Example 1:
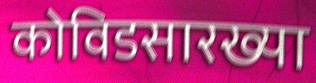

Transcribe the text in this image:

कोविडसारख्या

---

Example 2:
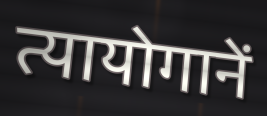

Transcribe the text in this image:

त्यायोगानें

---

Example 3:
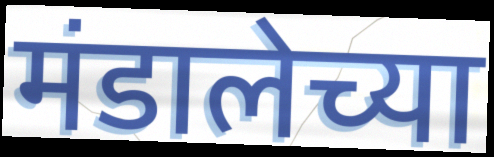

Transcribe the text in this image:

मंडालेच्या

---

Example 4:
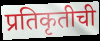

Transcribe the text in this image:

प्रतिकृतीची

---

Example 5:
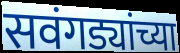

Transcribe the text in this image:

सवंगड्यांच्या